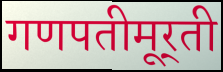
गणपतीमूर्ती